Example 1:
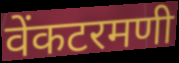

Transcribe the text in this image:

वेंकटरमणी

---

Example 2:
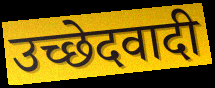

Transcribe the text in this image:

उच्छेदवादी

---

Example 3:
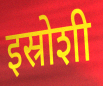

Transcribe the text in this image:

इस्रोशी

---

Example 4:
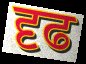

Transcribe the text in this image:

दृढ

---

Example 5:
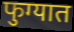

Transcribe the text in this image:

फुग्यात